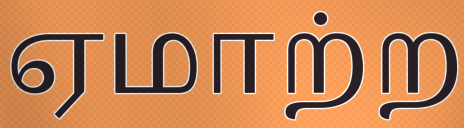
ஏமாற்ற